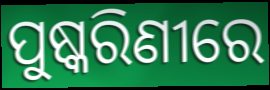
ପୁଷ୍କରିଣୀରେ